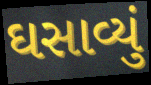
ઘસાવ્યું